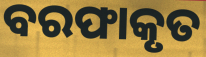
ବରଫାକୃତ